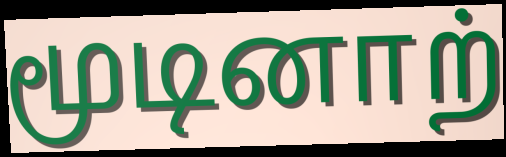
மூடினாற்